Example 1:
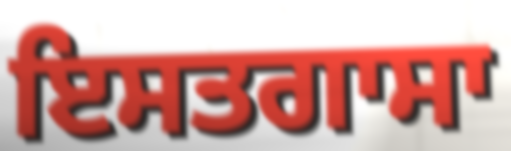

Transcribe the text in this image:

ਇਸਤਗਾਸਾ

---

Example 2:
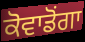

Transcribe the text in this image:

ਕੋਵਾਡੋਂਗਾ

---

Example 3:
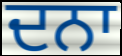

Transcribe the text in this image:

ਦਨਾ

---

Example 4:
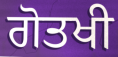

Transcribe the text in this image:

ਗੋਤਖੀ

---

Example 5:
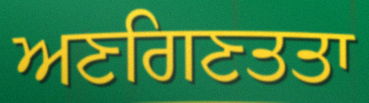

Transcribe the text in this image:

ਅਣਗਿਣਤਤਾ